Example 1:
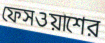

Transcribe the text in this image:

ফেসওয়াশের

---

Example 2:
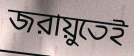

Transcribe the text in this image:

জরায়ুতেই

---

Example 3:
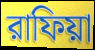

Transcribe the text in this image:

রাফিয়া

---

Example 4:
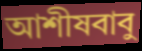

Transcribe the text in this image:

আশীষবাবু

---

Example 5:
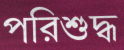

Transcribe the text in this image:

পরিশুদ্ধ